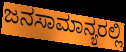
ಜನಸಾಮಾನ್ಯರಲ್ಲಿ